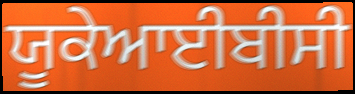
ਯੂਕੇਆਈਬੀਸੀ